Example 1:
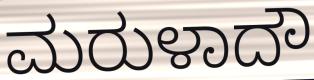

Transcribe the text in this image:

ಮರುಳಾದೌ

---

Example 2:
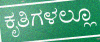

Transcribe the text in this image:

ಕೃತಿಗಳಲ್ಲೂ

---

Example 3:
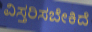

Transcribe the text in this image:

ವಿಸ್ತರಿಸಬೇಕಿದೆ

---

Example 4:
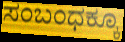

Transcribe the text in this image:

ಸಂಬಂಧಕ್ಕೂ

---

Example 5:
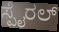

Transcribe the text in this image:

ಸ್ಪೈರಲ್